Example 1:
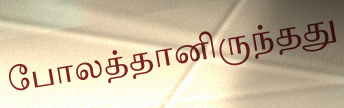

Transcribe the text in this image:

போலத்தானிருந்தது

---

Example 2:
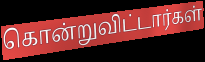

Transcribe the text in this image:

கொன்றுவிட்டார்கள்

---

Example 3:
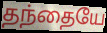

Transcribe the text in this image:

தந்தையே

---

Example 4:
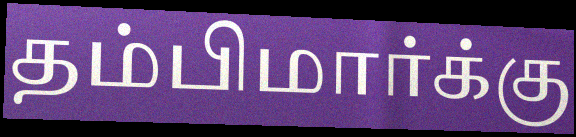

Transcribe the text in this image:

தம்பிமார்க்கு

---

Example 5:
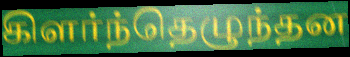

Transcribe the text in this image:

கிளர்ந்தெழுந்தன